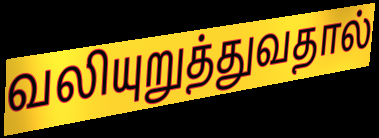
வலியுறுத்துவதால்